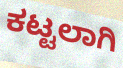
ಕಟ್ಟಲಾಗಿ